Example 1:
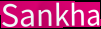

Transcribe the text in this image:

Sankha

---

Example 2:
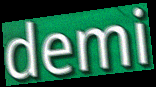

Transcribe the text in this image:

demi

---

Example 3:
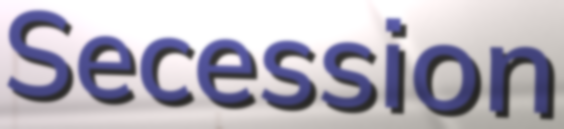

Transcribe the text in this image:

Secession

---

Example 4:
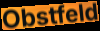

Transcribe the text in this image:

Obstfeld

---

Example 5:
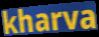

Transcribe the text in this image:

kharva